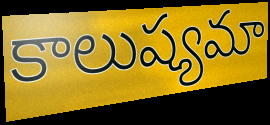
కాలుష్యమా